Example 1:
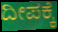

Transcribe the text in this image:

ದೀಪಕ್ಕೆ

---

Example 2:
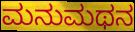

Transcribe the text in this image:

ಮನುಮಥನ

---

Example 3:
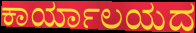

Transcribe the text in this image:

ಕಾರ್ಯಾಲಯದ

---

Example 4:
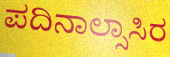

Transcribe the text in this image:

ಪದಿನಾಲ್ಸಾಸಿರ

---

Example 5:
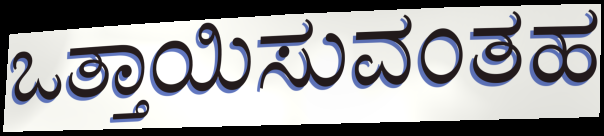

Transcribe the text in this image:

ಒತ್ತಾಯಿಸುವಂತಹ